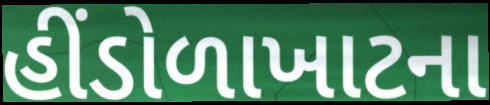
હીંડોળાખાટના